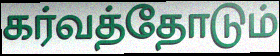
கர்வத்தோடும்